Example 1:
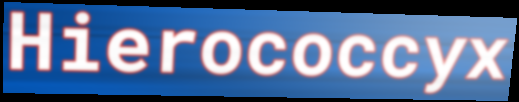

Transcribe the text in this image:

Hierococcyx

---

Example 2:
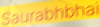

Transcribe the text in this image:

Saurabhbhai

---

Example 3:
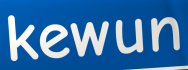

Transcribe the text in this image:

kewun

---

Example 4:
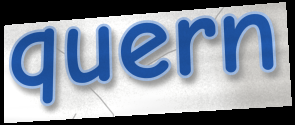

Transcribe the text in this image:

quern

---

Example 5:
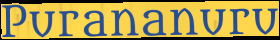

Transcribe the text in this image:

Purananuru